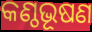
କଣ୍ଠଭୂଷଣ